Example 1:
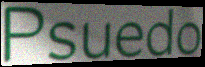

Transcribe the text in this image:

Psuedo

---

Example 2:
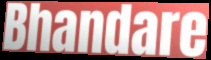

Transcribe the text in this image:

Bhandare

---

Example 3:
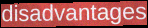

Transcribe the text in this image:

disadvantages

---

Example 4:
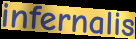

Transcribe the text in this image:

infernalis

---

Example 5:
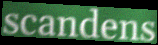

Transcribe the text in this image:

scandens